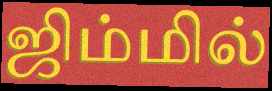
ஜிம்மில்